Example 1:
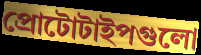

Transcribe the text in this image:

প্রোটোটাইপগুলো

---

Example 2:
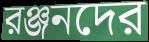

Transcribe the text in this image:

রঞ্জনদের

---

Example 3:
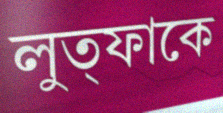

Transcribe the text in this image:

লুত্ফাকে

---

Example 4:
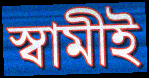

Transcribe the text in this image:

স্বামীই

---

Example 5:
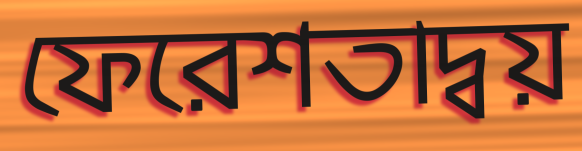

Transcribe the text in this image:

ফেরেশতাদ্বয়